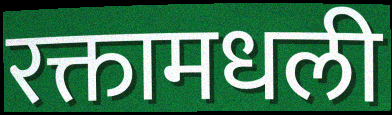
रक्तामधली